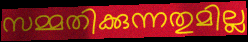
സമ്മതിക്കുന്നതുമില്ല